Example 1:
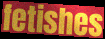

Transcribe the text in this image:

fetishes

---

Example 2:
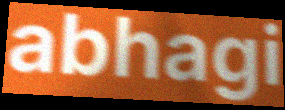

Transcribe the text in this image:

abhagi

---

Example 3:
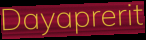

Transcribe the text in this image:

Dayaprerit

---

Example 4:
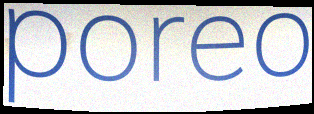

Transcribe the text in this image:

poreo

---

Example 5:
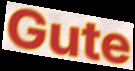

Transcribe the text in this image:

Gute